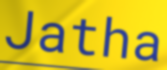
Jatha